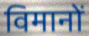
विमानों